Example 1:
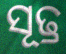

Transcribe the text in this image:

ସୂଢ୍ର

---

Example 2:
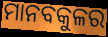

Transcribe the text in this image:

ମାନବକୁଳର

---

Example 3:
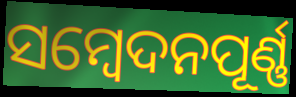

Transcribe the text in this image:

ସମ୍ବେଦନପୂର୍ଣ୍ଣ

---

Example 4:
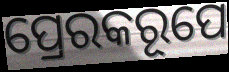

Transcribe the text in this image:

ପ୍ରେରକରୂପେ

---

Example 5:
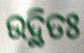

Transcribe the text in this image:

ଉଦ୍ଥିତଃ